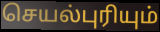
செயல்புரியும்